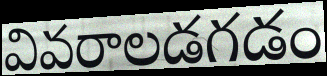
వివరాలడగడం